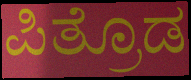
ಪಿತ್ರೊಡ